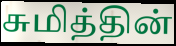
சுமித்தின்